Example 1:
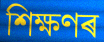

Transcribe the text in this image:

শিক্ষণৰ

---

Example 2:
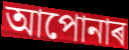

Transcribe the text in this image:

আপোনাৰ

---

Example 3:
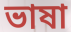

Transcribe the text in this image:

ভাষা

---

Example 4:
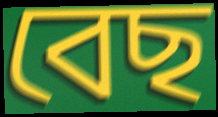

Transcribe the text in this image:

বেছ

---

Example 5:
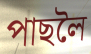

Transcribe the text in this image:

পাছলৈ